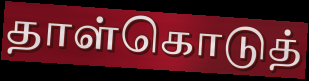
தாள்கொடுத்